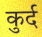
कुर्द